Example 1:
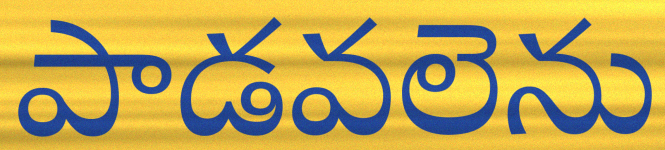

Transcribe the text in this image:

పాడవలెను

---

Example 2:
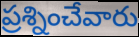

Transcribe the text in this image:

ప్రశ్నించేవారు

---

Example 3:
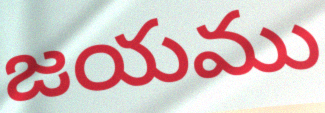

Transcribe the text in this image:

జయము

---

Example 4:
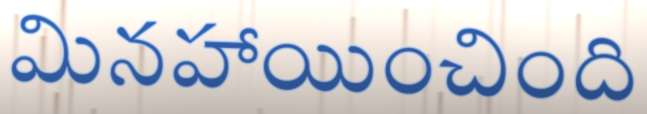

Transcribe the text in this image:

మినహాయించింది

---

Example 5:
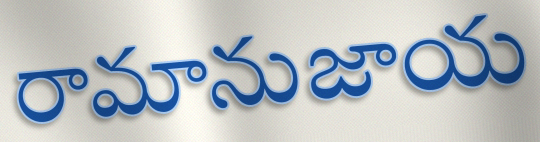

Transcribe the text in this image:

రామానుజాయ